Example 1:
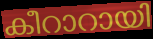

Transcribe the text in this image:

കീറാറായി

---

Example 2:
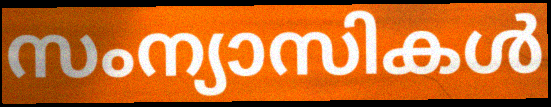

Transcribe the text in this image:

സംന്യാസികൾ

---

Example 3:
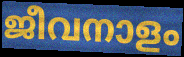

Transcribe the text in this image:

ജീവനാളം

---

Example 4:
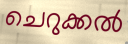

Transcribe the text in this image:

ചെറുക്കൽ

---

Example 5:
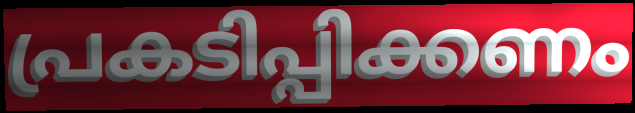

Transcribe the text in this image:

പ്രകടിപ്പിക്കണം